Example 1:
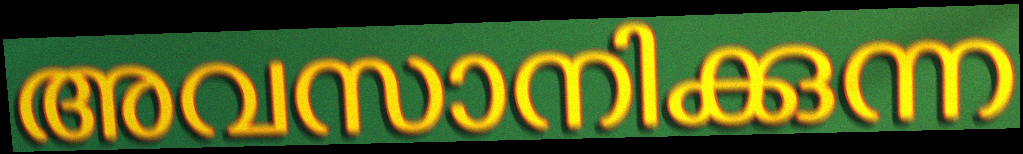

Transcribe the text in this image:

അവസാനിക്കുന്ന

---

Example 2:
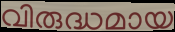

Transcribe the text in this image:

വിരുദ്ധമായ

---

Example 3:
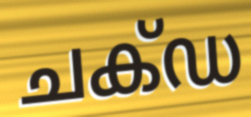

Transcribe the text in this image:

ചക്ഡ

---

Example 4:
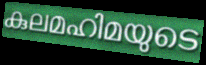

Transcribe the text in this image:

കുലമഹിമയുടെ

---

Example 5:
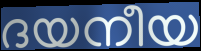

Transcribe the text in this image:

ദയനീയ